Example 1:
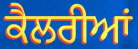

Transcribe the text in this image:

ਕੈਲਰੀਆਂ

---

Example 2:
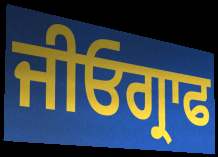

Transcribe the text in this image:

ਜੀਓਗ੍ਰਾਫ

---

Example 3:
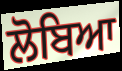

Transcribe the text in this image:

ਲੋਬਿਆ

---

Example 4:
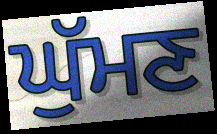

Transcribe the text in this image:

ਘੁੱਮਣ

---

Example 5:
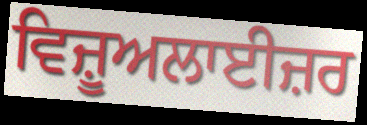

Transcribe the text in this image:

ਵਿਜ਼ੂਅਲਾਈਜ਼ਰ